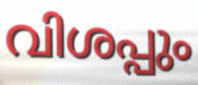
വിശപ്പും